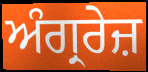
ਅੰਗ੍ਰਰੇਜ਼